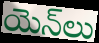
యెన్‌లు